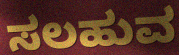
ಸಲಹುವ